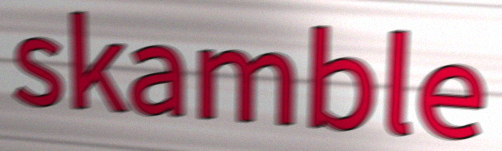
skamble